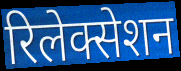
रिलेक्सेशन